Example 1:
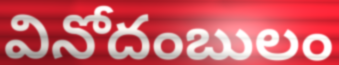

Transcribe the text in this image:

వినోదంబులం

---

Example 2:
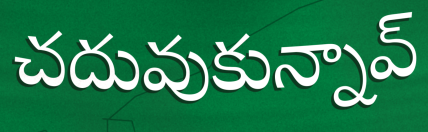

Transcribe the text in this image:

చదువుకున్నావ్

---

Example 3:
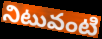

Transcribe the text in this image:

నిటువంటి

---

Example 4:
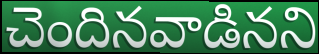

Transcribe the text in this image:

చెందినవాడినని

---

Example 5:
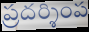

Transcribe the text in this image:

ప్రదర్శింప